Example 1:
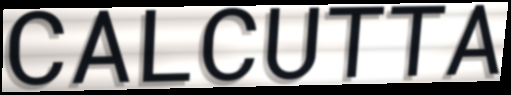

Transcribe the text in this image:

CALCUTTA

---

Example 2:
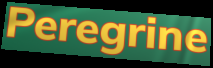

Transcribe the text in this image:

Peregrine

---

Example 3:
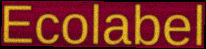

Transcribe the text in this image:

Ecolabel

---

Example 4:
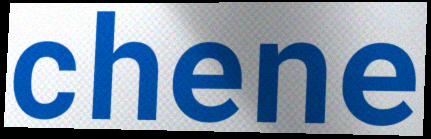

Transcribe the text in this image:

chene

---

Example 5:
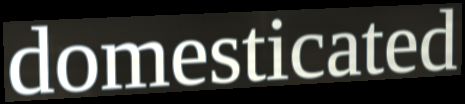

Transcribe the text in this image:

domesticated